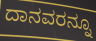
ದಾನವರನ್ನೂ